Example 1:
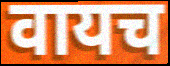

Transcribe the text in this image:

वायच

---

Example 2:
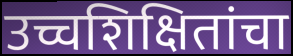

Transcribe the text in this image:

उच्चशिक्षितांचा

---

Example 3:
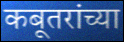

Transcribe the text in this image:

कबूतरांच्या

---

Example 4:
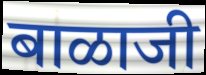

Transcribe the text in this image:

बाळाजी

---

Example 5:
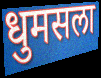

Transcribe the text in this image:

धुमसला